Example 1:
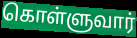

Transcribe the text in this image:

கொள்ளுவார்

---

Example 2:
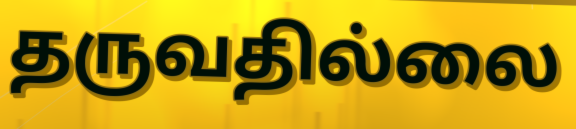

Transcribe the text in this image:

தருவதில்லை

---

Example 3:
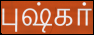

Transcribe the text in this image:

புஷ்கர்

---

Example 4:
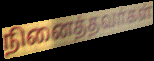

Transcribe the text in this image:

நினைத்தவர்கள்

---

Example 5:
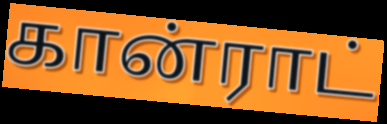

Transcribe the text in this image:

கான்ராட்